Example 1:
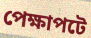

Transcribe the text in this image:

পেক্ষাপটে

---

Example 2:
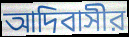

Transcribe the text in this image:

আদিবাসীর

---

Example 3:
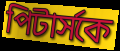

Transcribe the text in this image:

পিটার্সকে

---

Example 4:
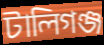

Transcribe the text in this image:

টালিগঞ্জ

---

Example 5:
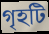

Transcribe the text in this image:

গৃহটি